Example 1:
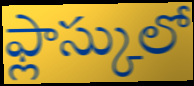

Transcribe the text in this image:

ఫ్లాస్కులో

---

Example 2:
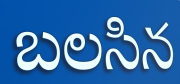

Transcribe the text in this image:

బలసిన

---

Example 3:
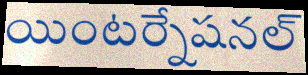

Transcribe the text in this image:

యింటర్నేషనల్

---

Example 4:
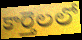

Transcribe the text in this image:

కార్తెలలో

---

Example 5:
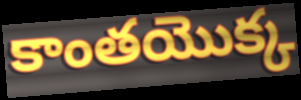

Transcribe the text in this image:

కాంతయొక్క